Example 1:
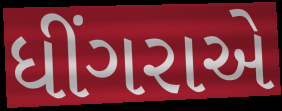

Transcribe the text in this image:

ધીંગરાએ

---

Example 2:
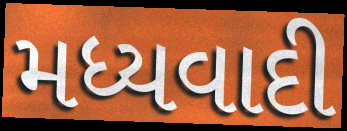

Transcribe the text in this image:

મધ્યવાદી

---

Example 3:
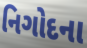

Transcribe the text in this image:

નિગોદના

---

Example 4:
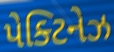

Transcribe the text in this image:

પેક્ટિનેઝ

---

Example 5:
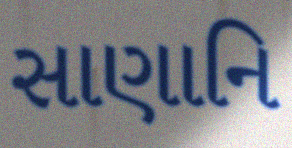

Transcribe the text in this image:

સાણાનિ